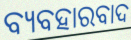
ବ୍ୟବହାରବାଦ